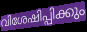
വിശേഷിപ്പിക്കും